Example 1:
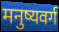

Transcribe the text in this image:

मनुष्यवर्ग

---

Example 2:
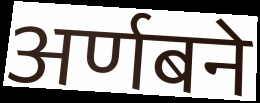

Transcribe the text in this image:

अर्णबने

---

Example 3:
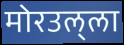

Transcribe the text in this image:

मोरउल्ला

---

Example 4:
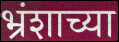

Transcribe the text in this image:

भ्रंशाच्या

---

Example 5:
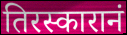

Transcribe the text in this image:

तिरस्कारानं